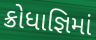
ક્રોધાજ્ઞિમાં